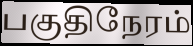
பகுதிநேரம்